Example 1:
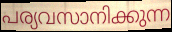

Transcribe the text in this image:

പര്യവസാനിക്കുന്ന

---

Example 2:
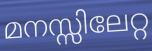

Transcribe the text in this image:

മനസ്സിലേറ്റ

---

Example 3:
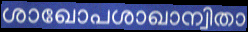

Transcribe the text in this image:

ശാഖോപശാഖാന്വിതാ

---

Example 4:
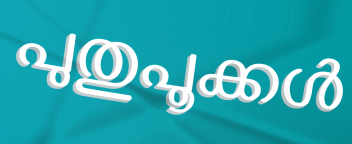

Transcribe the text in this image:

പുതുപൂക്കൾ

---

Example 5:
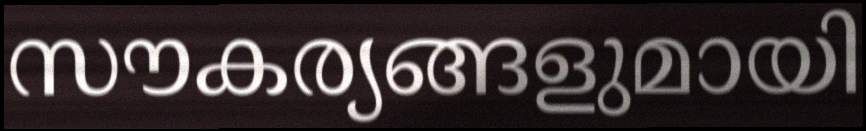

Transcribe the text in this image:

സൗകര്യങ്ങളുമായി